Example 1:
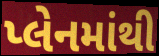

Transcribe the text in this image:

પ્લેનમાંથી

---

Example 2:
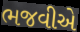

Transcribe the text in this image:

ભજવીએ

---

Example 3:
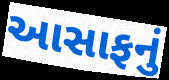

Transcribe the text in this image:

આસાફનું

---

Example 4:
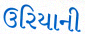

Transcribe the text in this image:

ઉરિયાની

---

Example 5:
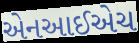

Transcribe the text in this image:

એનઆઈએચ